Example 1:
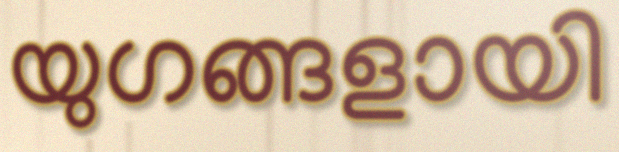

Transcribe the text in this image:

യുഗങ്ങളായി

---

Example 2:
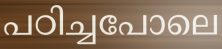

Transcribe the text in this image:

പഠിച്ചപോലെ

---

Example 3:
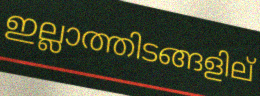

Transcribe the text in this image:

ഇല്ലാത്തിടങ്ങളില്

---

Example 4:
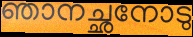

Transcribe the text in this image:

ഞാനച്ഛനോടു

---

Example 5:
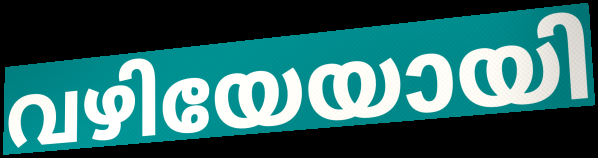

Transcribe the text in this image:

വഴിയേയായി